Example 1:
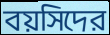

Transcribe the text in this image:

বয়সিদের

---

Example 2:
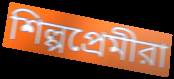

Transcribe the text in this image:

শিল্পপ্রেমীরা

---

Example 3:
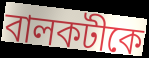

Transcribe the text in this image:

বালকটীকে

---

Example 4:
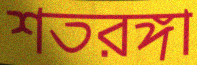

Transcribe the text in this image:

শতরঙ্গা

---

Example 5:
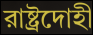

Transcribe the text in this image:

রাষ্ট্রদোহী